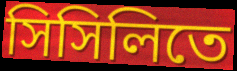
সিসিলিতে